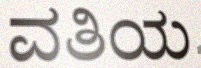
ವತಿಯ